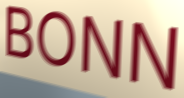
BONN